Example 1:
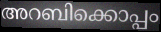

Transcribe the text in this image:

അറബിക്കൊപ്പം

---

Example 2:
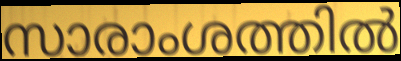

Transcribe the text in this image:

സാരാംശത്തിൽ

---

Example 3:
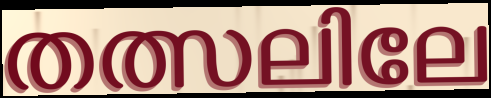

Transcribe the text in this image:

തത്സലിലേ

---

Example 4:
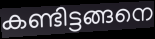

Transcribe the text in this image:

കണ്ടിട്ടങ്ങനെ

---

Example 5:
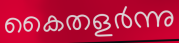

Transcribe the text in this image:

കൈതളർന്നു